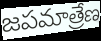
జపమాత్రేణ